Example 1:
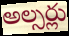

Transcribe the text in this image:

అల్సర్లు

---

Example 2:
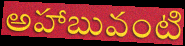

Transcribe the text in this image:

అహాబువంటి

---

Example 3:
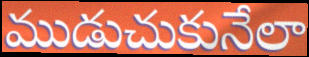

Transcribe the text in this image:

ముడుచుకునేలా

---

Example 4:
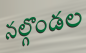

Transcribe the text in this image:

నల్గొండల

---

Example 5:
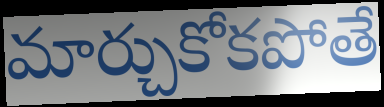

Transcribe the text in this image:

మార్చుకోకపోతే